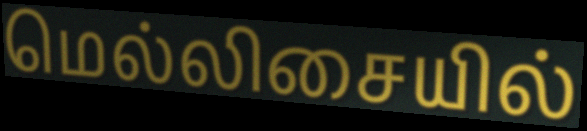
மெல்லிசையில்